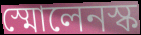
স্মোলেনস্ক